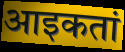
आइकतां